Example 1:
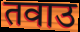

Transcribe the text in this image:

तवाउ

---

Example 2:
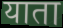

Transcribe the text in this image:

याता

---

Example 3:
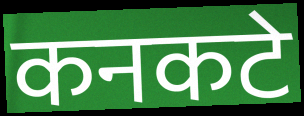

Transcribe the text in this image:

कनकटे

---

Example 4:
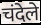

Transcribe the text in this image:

चंदेले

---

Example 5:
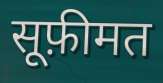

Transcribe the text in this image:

सूफ़ीमत